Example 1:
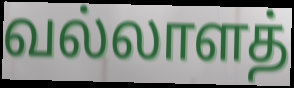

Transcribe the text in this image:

வல்லாளத்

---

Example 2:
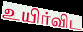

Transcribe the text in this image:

உயிர்விட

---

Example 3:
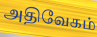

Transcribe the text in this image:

அதிவேகம்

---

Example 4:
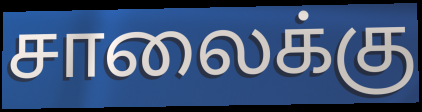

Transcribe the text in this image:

சாலைக்கு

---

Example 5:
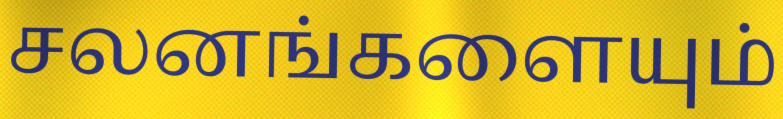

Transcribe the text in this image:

சலனங்களையும்